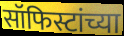
सॉफिस्टांच्या